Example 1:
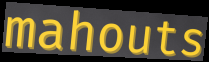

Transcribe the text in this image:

mahouts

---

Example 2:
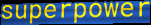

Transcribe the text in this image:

superpower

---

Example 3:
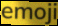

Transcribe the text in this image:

emoji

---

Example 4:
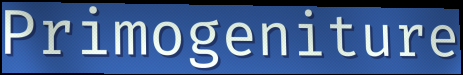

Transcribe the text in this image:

Primogeniture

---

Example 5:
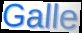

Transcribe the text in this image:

Galle